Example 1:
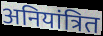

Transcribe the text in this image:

अनियांत्रित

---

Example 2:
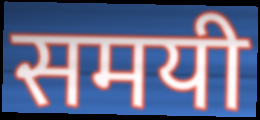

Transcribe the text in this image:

समयी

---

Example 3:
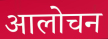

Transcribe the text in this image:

आलोचन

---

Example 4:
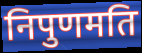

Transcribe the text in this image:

निपुणमति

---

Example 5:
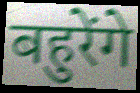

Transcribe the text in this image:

बहुरेंगे